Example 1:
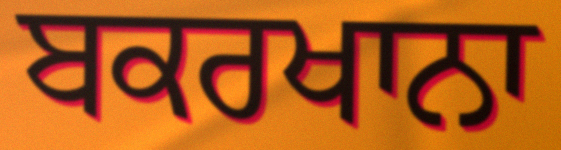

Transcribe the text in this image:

ਬਕਰਖਾਨਾ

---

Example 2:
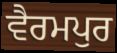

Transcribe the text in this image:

ਵੈਰਮਪੁਰ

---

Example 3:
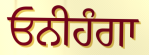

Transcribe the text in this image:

ਓਨੀਹੰਗਾ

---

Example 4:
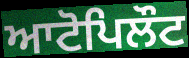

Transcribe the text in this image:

ਆਟੋਪਿਲੌਟ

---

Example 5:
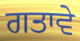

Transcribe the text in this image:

ਗਤਾਵੇ